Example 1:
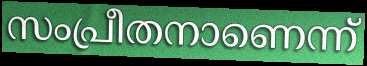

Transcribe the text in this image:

സംപ്രീതനാണെന്ന്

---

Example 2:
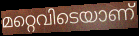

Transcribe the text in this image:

മറ്റെവിടെയാണ്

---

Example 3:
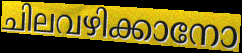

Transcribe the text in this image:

ചിലവഴിക്കാനോ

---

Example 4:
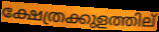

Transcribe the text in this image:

ക്ഷേത്രക്കുളത്തില്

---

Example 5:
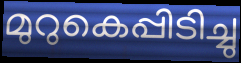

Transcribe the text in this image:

മുറുകെപ്പിടിച്ചു